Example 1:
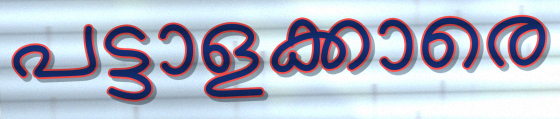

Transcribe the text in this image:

പട്ടാളക്കാരെ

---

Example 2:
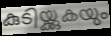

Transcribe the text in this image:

കുടിയ്ക്കുകയും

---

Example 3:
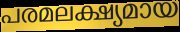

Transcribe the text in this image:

പരമലക്ഷ്യമായ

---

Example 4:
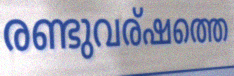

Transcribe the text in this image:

രണ്ടുവര്ഷത്തെ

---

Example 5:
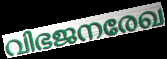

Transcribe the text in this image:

വിഭജനരേഖ